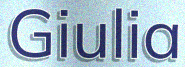
Giulia